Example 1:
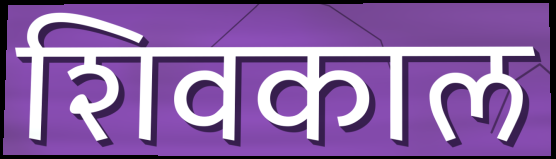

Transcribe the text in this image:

शिवकाल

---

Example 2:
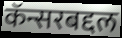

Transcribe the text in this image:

कॅन्सरबद्दल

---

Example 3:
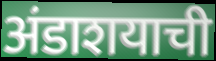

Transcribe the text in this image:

अंडाशयाची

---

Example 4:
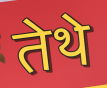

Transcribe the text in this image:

तेथे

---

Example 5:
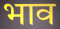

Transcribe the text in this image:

भाव